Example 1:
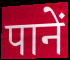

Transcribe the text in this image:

पानें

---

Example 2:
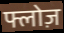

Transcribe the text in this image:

फ्लोज़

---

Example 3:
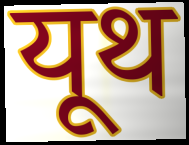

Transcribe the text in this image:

यूथ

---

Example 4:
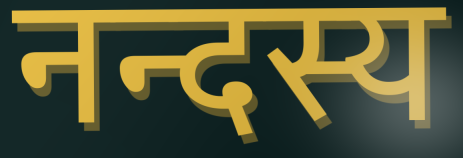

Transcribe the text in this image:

नन्दस्य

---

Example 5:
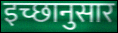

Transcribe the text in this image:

इच्‍छानुसार